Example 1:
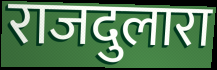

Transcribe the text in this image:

राजदुलारा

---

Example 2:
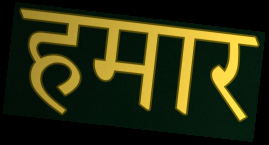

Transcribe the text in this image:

हमार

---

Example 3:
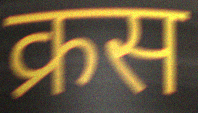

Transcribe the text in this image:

क्रस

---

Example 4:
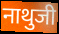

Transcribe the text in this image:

नाथुजी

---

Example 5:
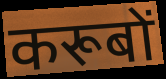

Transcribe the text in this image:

करूबों